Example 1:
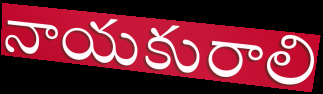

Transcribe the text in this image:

నాయకురాలి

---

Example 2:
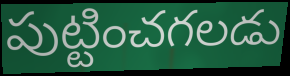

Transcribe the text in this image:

పుట్టించగలడు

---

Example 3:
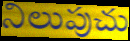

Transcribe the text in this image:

నిలుపుచు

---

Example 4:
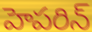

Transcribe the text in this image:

హెపరిన్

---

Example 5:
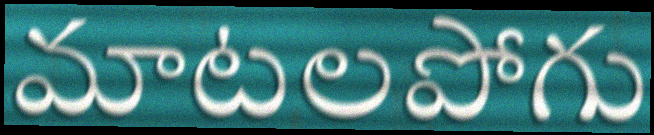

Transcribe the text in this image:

మాటలపోగు